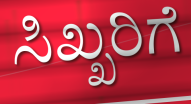
ಸಿಖ್ಖರಿಗೆ